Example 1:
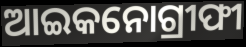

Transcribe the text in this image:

ଆଇକନୋଗ୍ରୀଫୀ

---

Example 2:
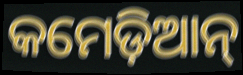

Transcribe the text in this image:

କମେଡ଼ିଆନ୍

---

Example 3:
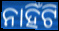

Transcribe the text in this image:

ନାହିଁଟି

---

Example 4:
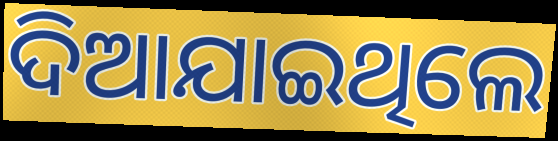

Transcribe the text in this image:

ଦିଆଯାଇଥିଲେ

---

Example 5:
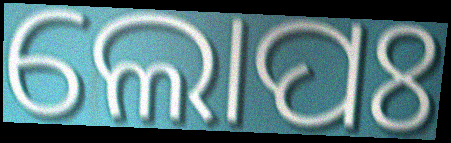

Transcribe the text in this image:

ଲୋପଃ